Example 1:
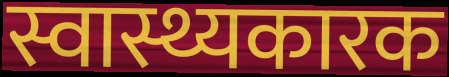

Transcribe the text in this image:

स्वास्थ्यकारक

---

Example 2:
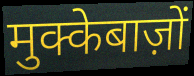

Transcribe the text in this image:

मुक्केबाज़ों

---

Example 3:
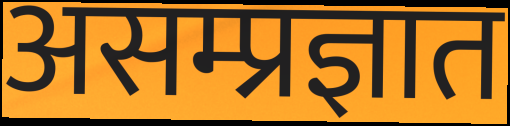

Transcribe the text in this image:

असम्प्रज्ञात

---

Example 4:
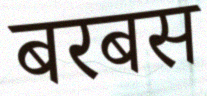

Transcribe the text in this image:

बरबस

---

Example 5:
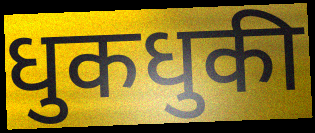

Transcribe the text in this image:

धुकधुकी